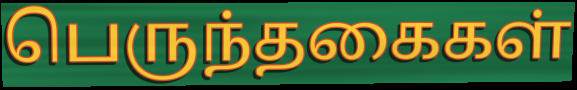
பெருந்தகைகள்